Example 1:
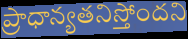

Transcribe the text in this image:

ప్రాధాన్యతనిస్తోందని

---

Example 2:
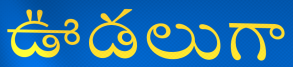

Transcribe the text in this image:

ఊడలుగా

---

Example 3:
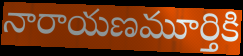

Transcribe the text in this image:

నారాయణమూర్తికి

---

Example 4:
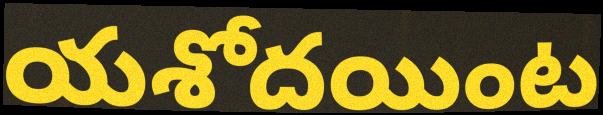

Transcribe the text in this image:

యశోదయింట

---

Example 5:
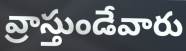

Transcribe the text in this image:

వ్రాస్తుండేవారు